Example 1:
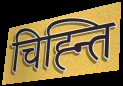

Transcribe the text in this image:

चिह्न्ति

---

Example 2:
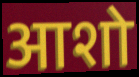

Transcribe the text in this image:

आशो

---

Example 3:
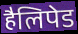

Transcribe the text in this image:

हैलिपेड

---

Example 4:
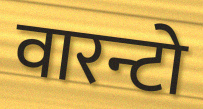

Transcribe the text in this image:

वारन्टो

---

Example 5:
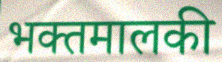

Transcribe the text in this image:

भक्तमालकी